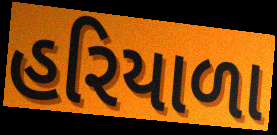
હરિયાળા